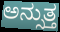
ಅನ್ಸುತ್ತ